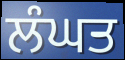
ਲੰਘਤ